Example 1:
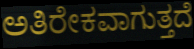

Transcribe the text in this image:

ಅತಿರೇಕವಾಗುತ್ತದೆ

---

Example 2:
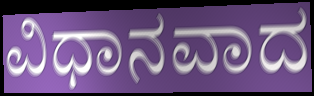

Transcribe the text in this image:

ವಿಧಾನವಾದ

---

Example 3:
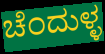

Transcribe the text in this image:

ಚೆಂದುಳ್ಳ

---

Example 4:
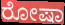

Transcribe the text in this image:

ರೋಷಾ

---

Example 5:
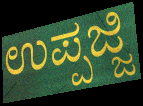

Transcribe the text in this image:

ಉಪ್ಪಜ್ಜಿ